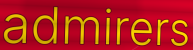
admirers